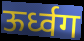
ऊर्ध्वग